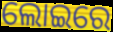
ଲୋଇରେ